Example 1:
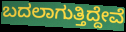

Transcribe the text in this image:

ಬದಲಾಗುತ್ತಿದ್ದೇವೆ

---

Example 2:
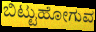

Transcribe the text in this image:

ಬಿಟ್ಟುಹೋಗುವ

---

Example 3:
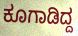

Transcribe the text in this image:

ಕೂಗಾಡಿದ್ದ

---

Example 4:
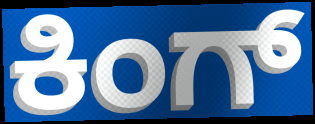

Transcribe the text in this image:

ಕಿಂಗ್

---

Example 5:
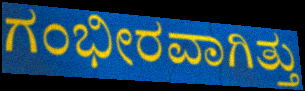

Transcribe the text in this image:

ಗಂಭೀರವಾಗಿತ್ತು